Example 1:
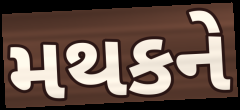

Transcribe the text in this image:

મથકને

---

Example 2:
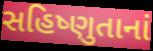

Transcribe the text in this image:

સહિષ્ણુતાનાં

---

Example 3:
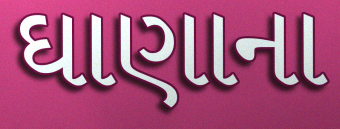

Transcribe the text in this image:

ઘાણાના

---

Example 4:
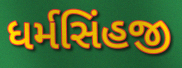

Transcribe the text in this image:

ધર્મસિંહજી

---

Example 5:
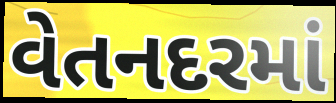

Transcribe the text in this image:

વેતનદરમાં